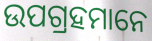
ଉପଗ୍ରହମାନେ